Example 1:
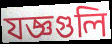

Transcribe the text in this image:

যজ্ঞগুলি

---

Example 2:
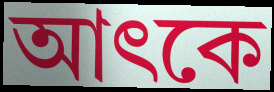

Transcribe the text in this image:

আৎকে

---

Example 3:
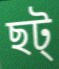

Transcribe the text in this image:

ছট্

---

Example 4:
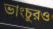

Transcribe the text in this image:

ভাংচুরও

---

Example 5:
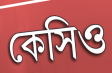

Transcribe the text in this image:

কেসিও